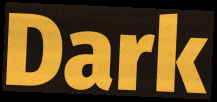
Dark